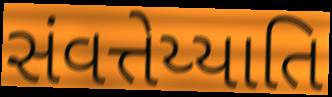
સંવત્તેય્યાતિ